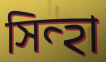
সিন্হা